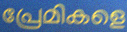
പ്രേമികളെ